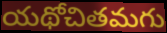
యథోచితమగు